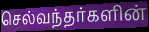
செல்வந்தர்களின்